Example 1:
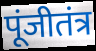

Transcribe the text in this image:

पूंजीतंत्र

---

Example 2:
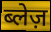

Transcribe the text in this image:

ब्लेज़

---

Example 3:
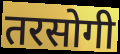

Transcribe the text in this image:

तरसोगी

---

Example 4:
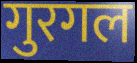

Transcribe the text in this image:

गुरगल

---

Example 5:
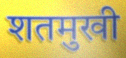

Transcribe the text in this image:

शतमुखी